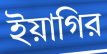
ইয়াগির